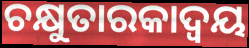
ଚକ୍ଷୁତାରକାଦ୍ଵୟ